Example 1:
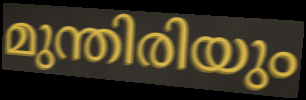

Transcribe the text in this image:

മുന്തിരിയും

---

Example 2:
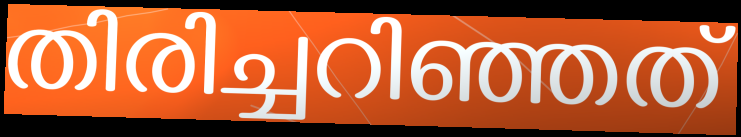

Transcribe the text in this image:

തിരിച്ചറിഞ്ഞത്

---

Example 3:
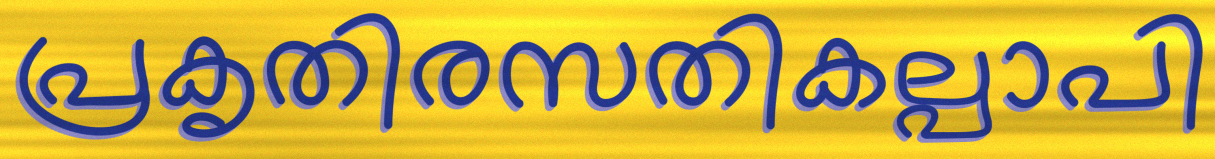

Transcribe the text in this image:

പ്രകൃതിരസതികല്പാപി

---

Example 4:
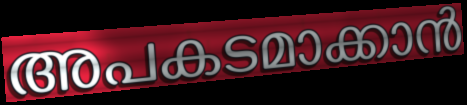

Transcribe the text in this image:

അപകടമാക്കാൻ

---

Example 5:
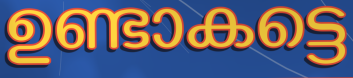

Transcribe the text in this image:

ഉണ്ടാകട്ടെ